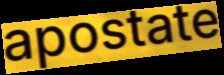
apostate